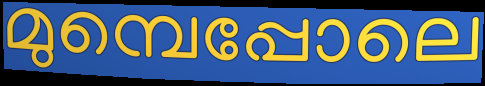
മുമ്പെപ്പോലെ